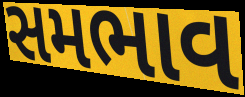
સમભાવ